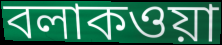
বলাকওয়া